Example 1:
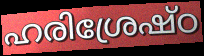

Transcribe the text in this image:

ഹരിശ്രേഷ്ഠ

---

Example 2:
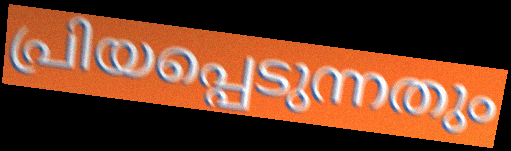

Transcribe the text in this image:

പ്രിയപ്പെടുന്നതും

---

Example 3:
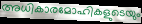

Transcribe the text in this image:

അധികാരമോഹികളുടെയും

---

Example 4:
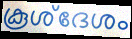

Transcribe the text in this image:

കൂശ്ദേശം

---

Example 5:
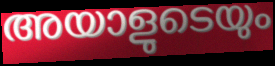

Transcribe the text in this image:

അയാളുടെയും